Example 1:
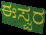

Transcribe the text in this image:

ಈಸ್ವರ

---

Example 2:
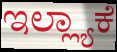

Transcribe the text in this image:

ಇಲ್ಲ್ಯಾಕೆ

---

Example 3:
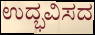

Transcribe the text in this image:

ಉದ್ಭವಿಸದ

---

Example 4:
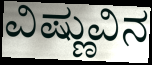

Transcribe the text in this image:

ವಿಷ್ಣುವಿನ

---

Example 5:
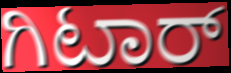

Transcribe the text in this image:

ಗಿಟಾರ್